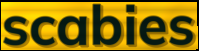
scabies